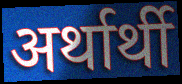
अर्थार्थी